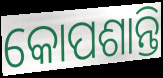
କୋପଶାନ୍ତି